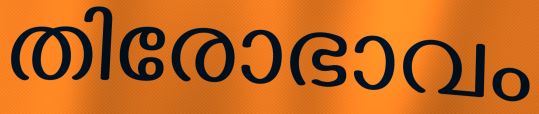
തിരോഭാവം